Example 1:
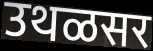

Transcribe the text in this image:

उथळसर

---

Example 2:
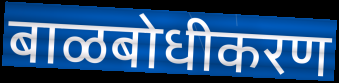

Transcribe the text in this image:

बाळबोधीकरण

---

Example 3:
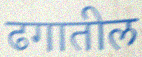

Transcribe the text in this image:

ढगातील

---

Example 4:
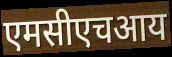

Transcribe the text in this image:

एमसीएचआय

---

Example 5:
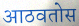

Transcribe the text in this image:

आठवतोस